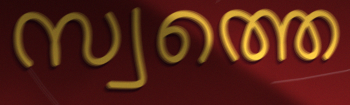
സ്വത്തെ